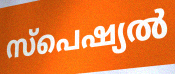
സ്പെഷ്യൽ